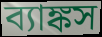
ব্যাঙ্কস